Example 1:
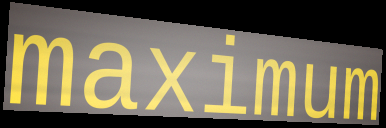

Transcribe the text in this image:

maximum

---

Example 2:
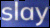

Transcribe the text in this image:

slay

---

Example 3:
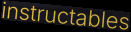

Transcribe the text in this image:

instructables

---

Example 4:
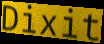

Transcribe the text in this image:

Dixit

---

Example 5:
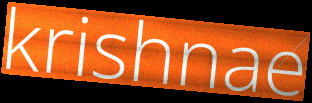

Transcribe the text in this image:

krishnae